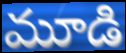
మూడి